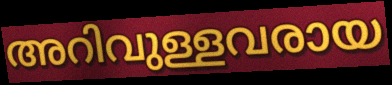
അറിവുള്ളവരായ